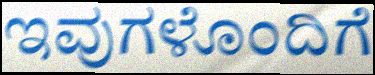
ಇವುಗಳೊಂದಿಗೆ